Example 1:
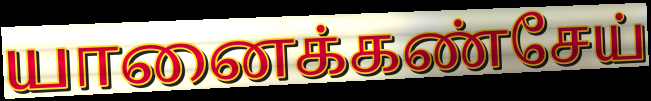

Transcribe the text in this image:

யானைக்கண்சேய்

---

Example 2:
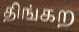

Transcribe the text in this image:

திங்கற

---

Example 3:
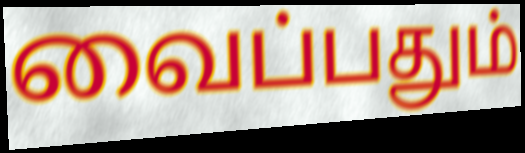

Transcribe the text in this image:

வைப்பதும்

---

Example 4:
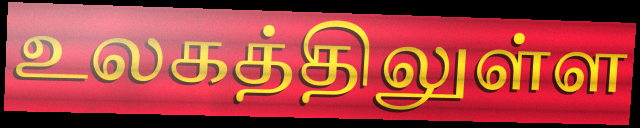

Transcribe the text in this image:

உலகத்திலுள்ள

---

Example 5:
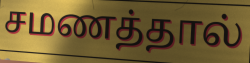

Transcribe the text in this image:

சமணத்தால்